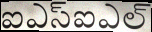
ఐఎస్ఐఎల్